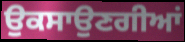
ਉਕਸਾਉਣਗੀਆਂ